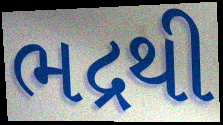
ભદ્રથી